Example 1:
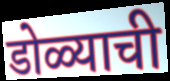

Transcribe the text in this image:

डोळ्याची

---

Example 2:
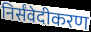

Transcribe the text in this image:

निर्संवेदीकरण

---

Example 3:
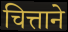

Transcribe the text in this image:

चित्ताने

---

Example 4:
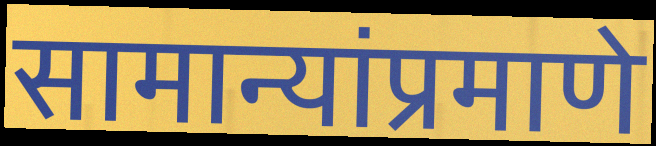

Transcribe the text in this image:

सामान्यांप्रमाणे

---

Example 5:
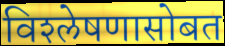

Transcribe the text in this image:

विश्लेषणासोबत